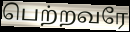
பெற்றவரே